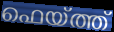
ഫെയ്ത്ത്